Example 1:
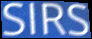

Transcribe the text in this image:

SIRS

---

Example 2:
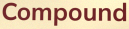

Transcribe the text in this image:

Compound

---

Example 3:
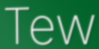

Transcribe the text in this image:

Tew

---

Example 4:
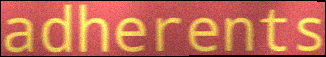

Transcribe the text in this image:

adherents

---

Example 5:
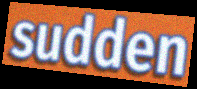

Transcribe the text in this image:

sudden